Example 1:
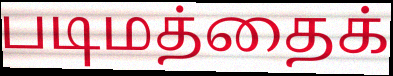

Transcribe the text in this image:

படிமத்தைக்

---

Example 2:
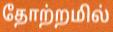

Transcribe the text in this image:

தோற்றமில்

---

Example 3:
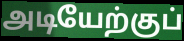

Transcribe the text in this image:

அடியேற்குப்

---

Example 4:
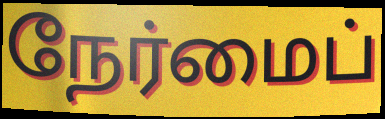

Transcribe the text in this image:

நேர்மைப்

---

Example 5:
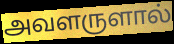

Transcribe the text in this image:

அவளருளால்